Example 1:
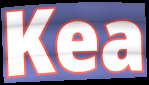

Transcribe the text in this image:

Kea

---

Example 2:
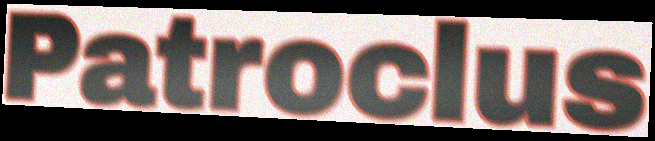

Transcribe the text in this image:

Patroclus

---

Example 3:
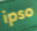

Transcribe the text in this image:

ipso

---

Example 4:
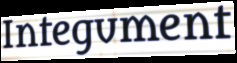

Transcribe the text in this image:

Integument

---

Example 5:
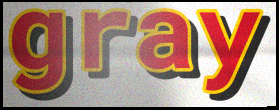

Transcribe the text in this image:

gray